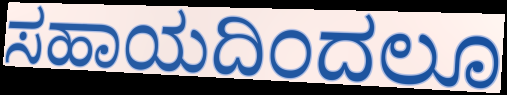
ಸಹಾಯದಿಂದಲೂ